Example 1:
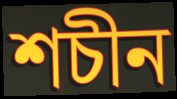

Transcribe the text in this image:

শচীন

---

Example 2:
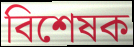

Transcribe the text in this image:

বিশেষক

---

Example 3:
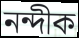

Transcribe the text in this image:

নন্দীক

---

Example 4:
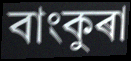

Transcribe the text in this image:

বাংকুৰা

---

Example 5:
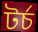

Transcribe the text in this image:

টৰ্চ